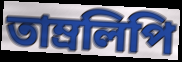
তাম্রলিপি